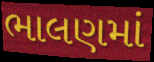
ભાલણમાં